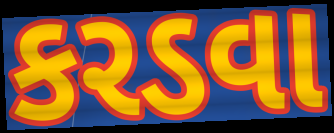
કરડવા